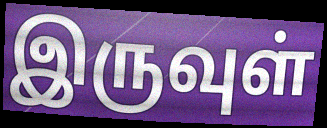
இருவுள்